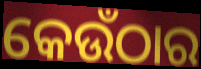
କେଉଁଠାର